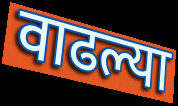
वाढल्या